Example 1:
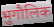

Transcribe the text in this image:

भुगौलिक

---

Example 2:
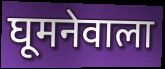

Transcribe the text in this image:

घूमनेवाला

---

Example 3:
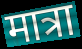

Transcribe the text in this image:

मात्रा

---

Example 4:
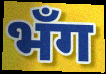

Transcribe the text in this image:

भँग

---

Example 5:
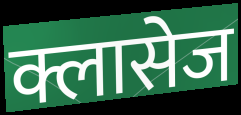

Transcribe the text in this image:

क्लासेज